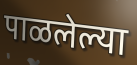
पाळलेल्या